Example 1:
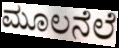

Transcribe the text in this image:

ಮೂಲನೆಲೆ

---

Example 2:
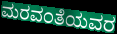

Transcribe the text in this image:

ಮರವಂತೆಯವರ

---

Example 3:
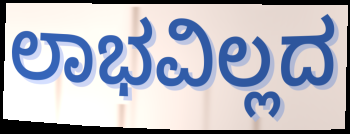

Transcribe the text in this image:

ಲಾಭವಿಲ್ಲದ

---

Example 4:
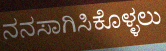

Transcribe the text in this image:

ನನಸಾಗಿಸಿಕೊಳ್ಳಲು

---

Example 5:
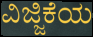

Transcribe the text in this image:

ವಿಜ್ಜಿಕೆಯ